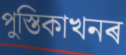
পুস্তিকাখনৰ